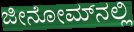
ಜೀನೋಮ್‌ನಲ್ಲಿ